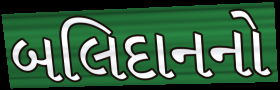
બલિદાનનો